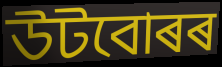
উটবোৰৰ